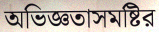
অভিজ্ঞতাসমষ্টির